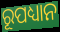
ରୂପଧ୍ୟାନ